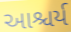
આશ્ચર્ય